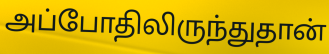
அப்போதிலிருந்துதான்